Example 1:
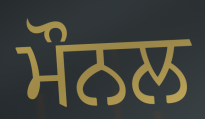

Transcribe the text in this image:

ਮੌਨਲ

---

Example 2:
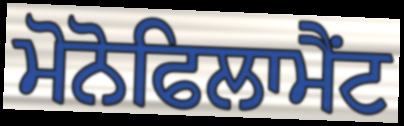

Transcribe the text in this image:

ਮੋਨੋਫਿਲਾਮੈਂਟ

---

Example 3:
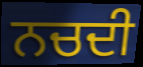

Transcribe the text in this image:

ਨਚਦੀ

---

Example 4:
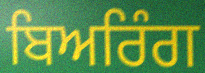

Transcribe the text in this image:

ਬਿਅਰਿੰਗ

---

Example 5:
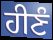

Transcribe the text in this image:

ਹੀਣੰ